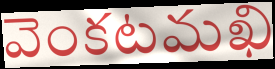
వెంకటమఖి